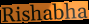
Rishabha